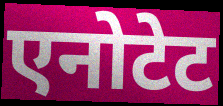
एनोटेट